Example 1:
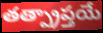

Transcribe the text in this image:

తత్ప్రాప్తయే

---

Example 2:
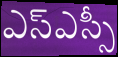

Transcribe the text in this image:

ఎస్ఎస్సీ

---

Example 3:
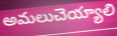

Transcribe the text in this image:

అమలుచెయ్యాలి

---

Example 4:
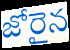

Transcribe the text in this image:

జోరైన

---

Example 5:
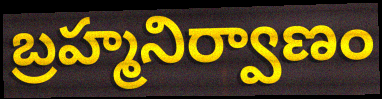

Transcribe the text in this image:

బ్రహ్మనిర్వాణం